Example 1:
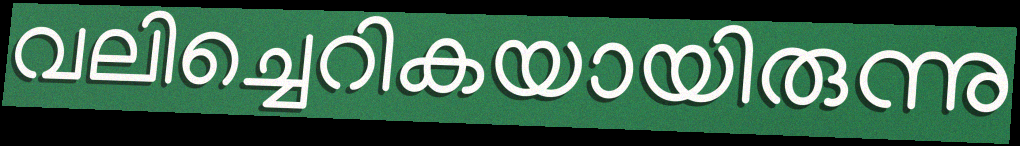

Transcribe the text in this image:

വലിച്ചെറികയായിരുന്നു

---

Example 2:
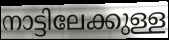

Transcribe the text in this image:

നാട്ടിലേക്കുള്ള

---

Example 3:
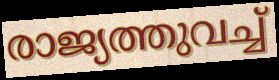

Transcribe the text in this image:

രാജ്യത്തുവച്ച്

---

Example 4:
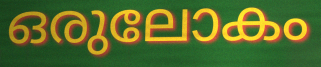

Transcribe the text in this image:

ഒരുലോകം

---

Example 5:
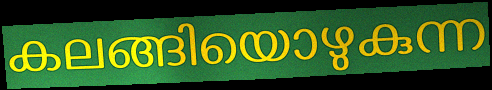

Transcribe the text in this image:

കലങ്ങിയൊഴുകുന്ന